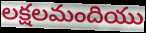
లక్షలమందియు